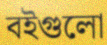
বইগুলো